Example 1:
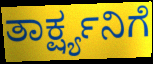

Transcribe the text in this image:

ತಾರ್ಕ್ಷ್ಯನಿಗೆ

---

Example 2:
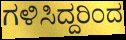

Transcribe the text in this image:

ಗಳಿಸಿದ್ದರಿಂದ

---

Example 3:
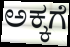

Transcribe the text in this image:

ಅಕ್ಕಗೆ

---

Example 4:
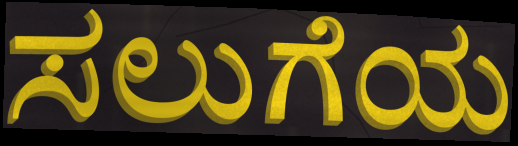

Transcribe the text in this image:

ಸಲುಗೆಯ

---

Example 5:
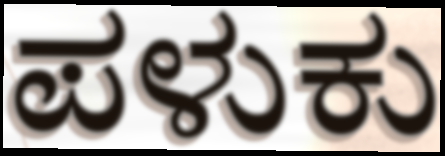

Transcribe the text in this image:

ಪಳುಕು